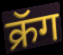
क्रॅग